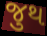
જુથ